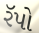
રૅપો